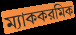
ম্যাককরমিক